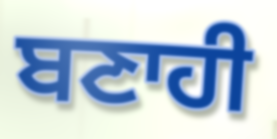
ਬਣਾਹੀ